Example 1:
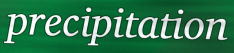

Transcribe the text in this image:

precipitation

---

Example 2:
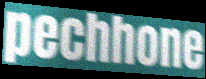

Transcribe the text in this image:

pechhone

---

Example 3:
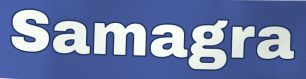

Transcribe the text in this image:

Samagra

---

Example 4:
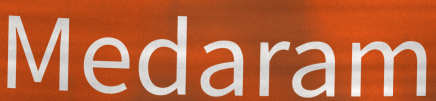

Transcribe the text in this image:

Medaram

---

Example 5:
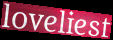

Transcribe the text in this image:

loveliest